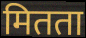
मितता